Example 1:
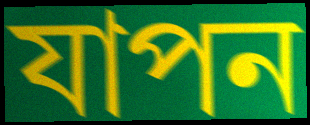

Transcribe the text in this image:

যাপন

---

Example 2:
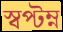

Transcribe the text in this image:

স্বপ্টম্ন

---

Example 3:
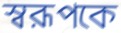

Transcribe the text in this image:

স্বরূপকে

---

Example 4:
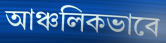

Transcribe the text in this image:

আঞ্চলিকভাবে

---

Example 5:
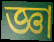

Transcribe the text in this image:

জ্ঞা